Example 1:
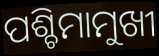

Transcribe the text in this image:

ପଶ୍ଚିମାମୁଖୀ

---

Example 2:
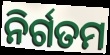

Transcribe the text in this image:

ନିର୍ଗତମ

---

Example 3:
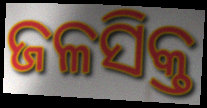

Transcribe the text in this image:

ଜଳସିକ୍ତ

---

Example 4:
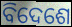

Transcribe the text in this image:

ବିଦେଶେ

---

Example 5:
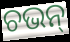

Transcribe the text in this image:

ଚଭନ୍